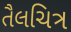
તૈલચિત્ર